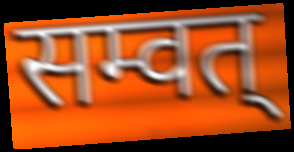
सम्वत्